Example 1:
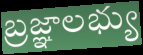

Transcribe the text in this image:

బ్రజ్ఞాలభ్యు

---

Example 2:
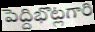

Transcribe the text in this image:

పెద్దిభొట్లగారి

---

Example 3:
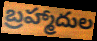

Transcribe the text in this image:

బ్రహ్మాదుల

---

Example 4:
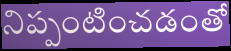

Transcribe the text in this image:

నిప్పంటించడంతో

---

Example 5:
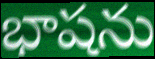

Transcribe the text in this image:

భాషను